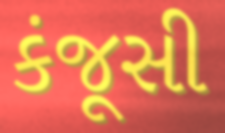
કંજૂસી